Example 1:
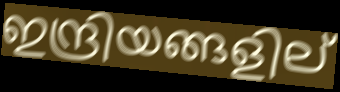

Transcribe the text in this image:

ഇന്ദ്രിയങ്ങളില്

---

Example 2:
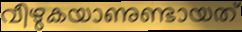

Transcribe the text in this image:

വീഴുകയാണുണ്ടായത്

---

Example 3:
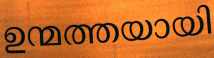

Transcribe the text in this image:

ഉന്മത്തയായി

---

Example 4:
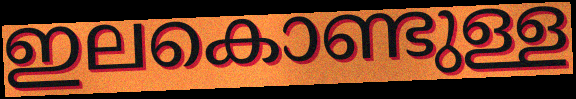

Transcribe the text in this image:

ഇലകൊണ്ടുള്ള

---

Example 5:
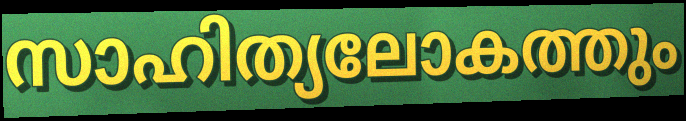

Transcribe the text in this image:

സാഹിത്യലോകത്തും